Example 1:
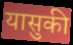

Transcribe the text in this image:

यासुकी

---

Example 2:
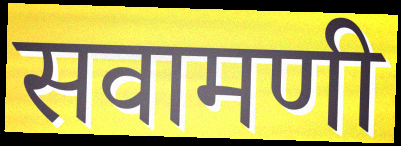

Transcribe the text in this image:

सवामणी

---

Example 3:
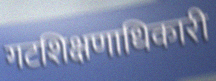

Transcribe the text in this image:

गटशिक्षणाधिकारी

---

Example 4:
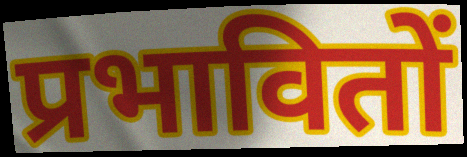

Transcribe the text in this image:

प्रभावितों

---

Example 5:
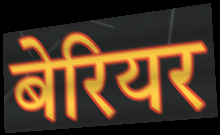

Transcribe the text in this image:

बेरियर